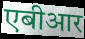
एबीआर